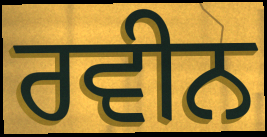
ਰਵੀਨ